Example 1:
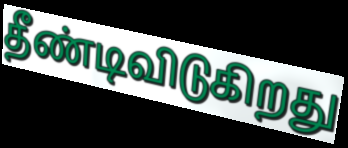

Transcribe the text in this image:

தீண்டிவிடுகிறது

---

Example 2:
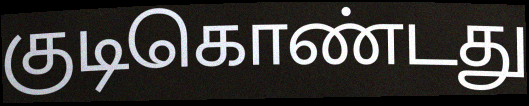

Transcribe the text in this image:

குடிகொண்டது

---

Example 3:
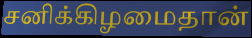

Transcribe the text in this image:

சனிக்கிழமைதான்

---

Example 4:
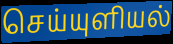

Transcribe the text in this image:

செய்யுளியல்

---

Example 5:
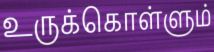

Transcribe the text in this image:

உருக்கொள்ளும்